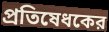
প্রতিষেধকের